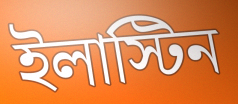
ইলাস্টিন